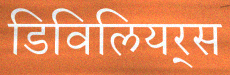
डिविलियर्स